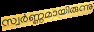
സ്വർണ്ണമായിരുന്നു